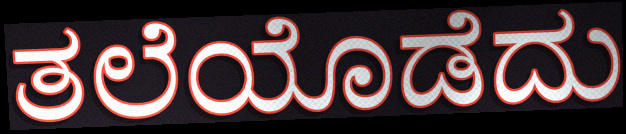
ತಲೆಯೊಡೆದು